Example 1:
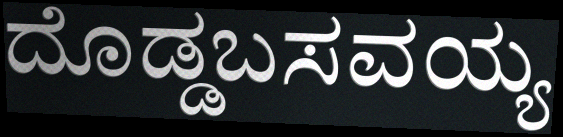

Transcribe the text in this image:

ದೊಡ್ಡಬಸವಯ್ಯ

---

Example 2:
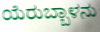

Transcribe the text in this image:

ಯೆರುಬ್ಬಾಳನು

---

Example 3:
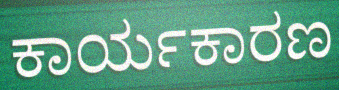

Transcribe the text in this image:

ಕಾರ್ಯಕಾರಣ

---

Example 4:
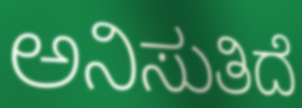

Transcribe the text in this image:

ಅನಿಸುತಿದೆ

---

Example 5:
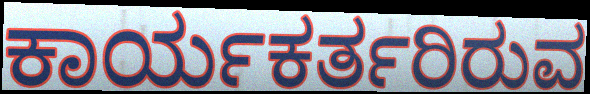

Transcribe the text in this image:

ಕಾರ್ಯಕರ್ತರಿರುವ